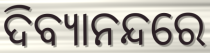
ଦିବ୍ୟାନନ୍ଦରେ